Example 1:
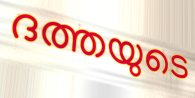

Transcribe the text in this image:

ദത്തയുടെ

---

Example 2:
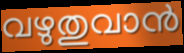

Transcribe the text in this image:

വഴുതുവാൻ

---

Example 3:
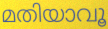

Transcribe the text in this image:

മതിയാവൂ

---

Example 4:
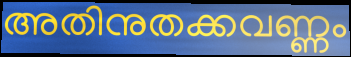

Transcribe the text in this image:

അതിനുതക്കവണ്ണം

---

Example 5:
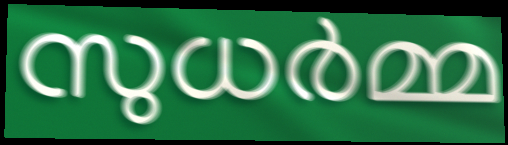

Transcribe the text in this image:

സുധർമ്മ